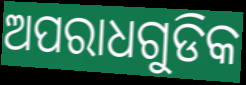
ଅପରାଧଗୁଡିକ